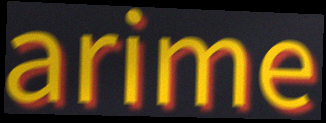
arime